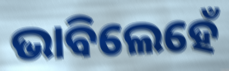
ଭାବିଲେହେଁ